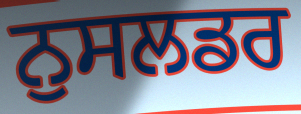
ਨੁਸਲਡਰ